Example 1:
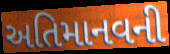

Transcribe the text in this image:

અતિમાનવની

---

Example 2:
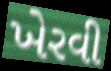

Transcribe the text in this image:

ખેરવી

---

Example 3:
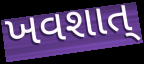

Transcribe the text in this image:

ખવશાત્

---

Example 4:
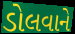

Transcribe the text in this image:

ડોલવાને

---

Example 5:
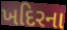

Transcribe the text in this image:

ખદિરના